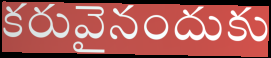
కరువైనందుకు